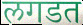
लगडत